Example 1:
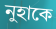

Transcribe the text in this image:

নুহাকে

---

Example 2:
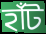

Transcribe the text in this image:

হাঁট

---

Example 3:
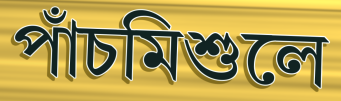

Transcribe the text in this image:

পাঁচমিশুলে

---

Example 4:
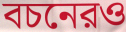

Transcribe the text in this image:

বচনেরও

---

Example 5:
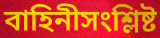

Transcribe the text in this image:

বাহিনীসংশ্লিষ্ট